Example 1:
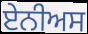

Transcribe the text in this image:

ਏਨੀਅਸ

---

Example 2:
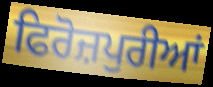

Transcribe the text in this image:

ਫਿਰੋਜ਼ਪੁਰੀਆਂ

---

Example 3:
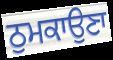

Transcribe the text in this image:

ਠੁਮਕਾਉਣਾ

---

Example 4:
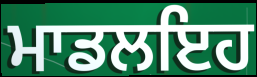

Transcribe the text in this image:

ਮਾਡਲਇਹ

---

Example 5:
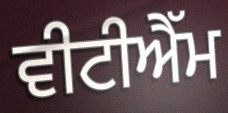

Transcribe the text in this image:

ਵੀਟੀਐੱਮ